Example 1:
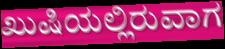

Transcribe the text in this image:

ಖುಷಿಯಲ್ಲಿರುವಾಗ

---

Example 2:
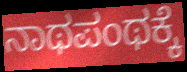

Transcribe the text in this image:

ನಾಥಪಂಥಕ್ಕೆ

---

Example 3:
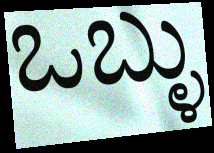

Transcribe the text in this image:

ಒಬ್ಳು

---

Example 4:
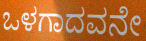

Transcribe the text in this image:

ಒಳಗಾದವನೇ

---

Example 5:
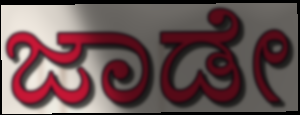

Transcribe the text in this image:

ಜಾಡೇ